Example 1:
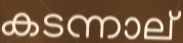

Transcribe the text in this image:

കടന്നാല്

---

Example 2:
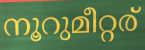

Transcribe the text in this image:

നൂറുമീറ്റര്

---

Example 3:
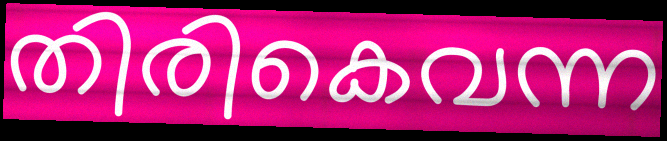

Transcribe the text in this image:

തിരികെവന്ന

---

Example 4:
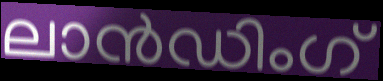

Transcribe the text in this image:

ലാൻഡിംഗ്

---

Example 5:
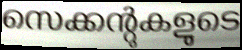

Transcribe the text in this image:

സെക്കന്റുകളുടെ